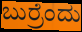
ಬುರ್ರೆಂದು